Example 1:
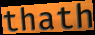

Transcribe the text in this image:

thath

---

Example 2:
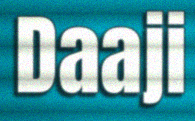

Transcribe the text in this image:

Daaji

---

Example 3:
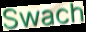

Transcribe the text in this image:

Swach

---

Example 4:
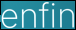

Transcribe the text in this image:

enfin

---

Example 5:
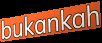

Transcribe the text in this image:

bukankah